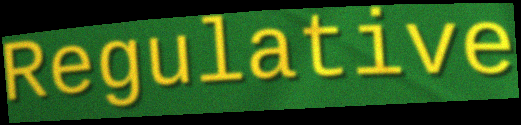
Regulative